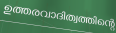
ഉത്തരവാദിത്വത്തിന്റെ